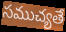
సముచ్యతే